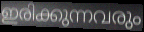
ഇരിക്കുന്നവരും